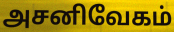
அசனிவேகம்